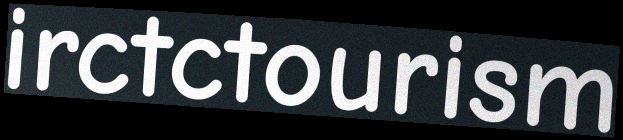
irctctourism